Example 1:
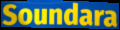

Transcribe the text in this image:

Soundara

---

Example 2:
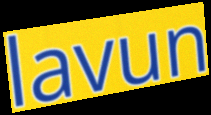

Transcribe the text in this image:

lavun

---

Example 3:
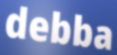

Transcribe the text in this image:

debba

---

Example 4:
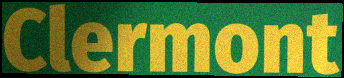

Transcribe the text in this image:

Clermont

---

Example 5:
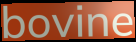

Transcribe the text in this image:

bovine